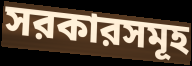
সরকারসমূহ